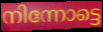
നിന്നോട്ടെ